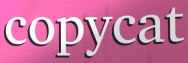
copycat